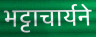
भट्टाचार्यने